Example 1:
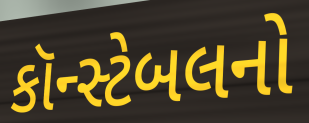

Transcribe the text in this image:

કૉન્સ્ટેબલનો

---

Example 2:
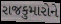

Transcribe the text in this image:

રાજકુમારોને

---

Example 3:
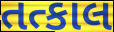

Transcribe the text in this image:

તત્કાલ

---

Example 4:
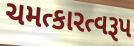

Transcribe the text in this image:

ચમત્કારત્વરૂપ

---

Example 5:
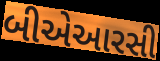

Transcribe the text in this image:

બીએઆરસી